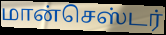
மான்செஸ்டர்